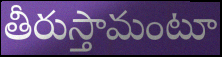
తీరుస్తామంటూ